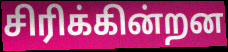
சிரிக்கின்றன